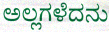
ಅಲ್ಲಗಳೆದನು